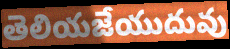
తెలియజేయుదువు